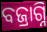
ବଜ୍ରାଗ୍ନି